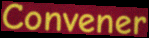
Convener